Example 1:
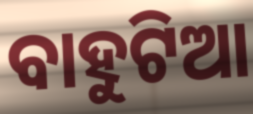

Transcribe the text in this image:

ବାହୁଟିଆ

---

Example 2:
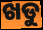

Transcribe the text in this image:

ଖଡୁ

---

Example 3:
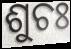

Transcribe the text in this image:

ଶୁଚଃ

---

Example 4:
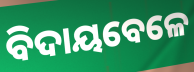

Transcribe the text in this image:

ବିଦାୟବେଳେ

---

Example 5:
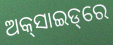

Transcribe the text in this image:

ଅକ୍‌ସାଇଡ୍‌ରେ